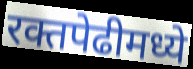
रक्तपेढीमध्ये